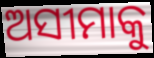
ଅସୀମାକୁ